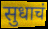
सुधाचं